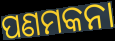
ପଣମକନା